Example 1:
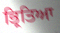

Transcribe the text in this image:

ਭ੍ਰਿਤਿਆ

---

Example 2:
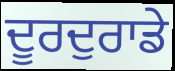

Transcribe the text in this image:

ਦੂਰਦੁਰਾਡੇ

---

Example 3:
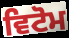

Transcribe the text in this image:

ਵਿਟੋਮ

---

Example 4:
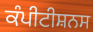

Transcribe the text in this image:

ਕੰਪੀਟੀਸ਼ਨਸ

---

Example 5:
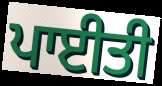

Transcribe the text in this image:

ਪਾਈਤੀ